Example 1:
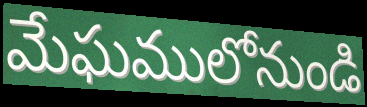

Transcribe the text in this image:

మేఘములోనుండి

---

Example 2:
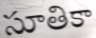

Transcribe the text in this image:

సూతికా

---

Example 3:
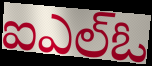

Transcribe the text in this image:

ఐఎల్ఓ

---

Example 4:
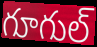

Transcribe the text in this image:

గూగుల్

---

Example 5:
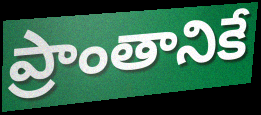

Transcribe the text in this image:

ప్రాంతానికే